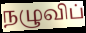
நழுவிப்